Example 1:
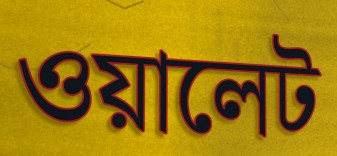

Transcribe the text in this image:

ওয়ালেট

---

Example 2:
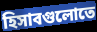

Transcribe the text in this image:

হিসাবগুলোতে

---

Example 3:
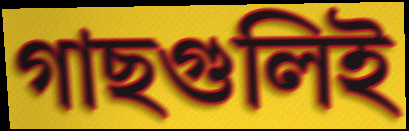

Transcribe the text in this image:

গাছগুলিই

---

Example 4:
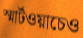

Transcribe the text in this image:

স্মার্টওয়াচেও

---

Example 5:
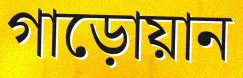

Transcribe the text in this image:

গাড়োয়ান